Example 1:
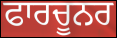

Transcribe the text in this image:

ਫਾਰਚੂਨਰ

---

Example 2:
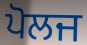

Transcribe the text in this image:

ਪੋਲਜ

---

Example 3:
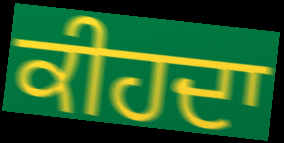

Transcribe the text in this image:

ਕੀਹਦਾ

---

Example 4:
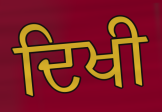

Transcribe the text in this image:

ਦਿਖੀ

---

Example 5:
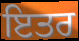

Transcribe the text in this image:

ਇਤਰ